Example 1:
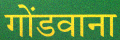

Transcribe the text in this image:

गोंडवाना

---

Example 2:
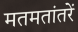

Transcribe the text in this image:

मतमतांतरें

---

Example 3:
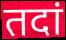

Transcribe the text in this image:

तदां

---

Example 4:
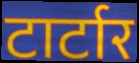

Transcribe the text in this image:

टार्टार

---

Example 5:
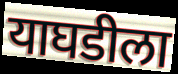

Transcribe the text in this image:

याघडीला